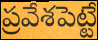
ప్రవేశపెట్టే